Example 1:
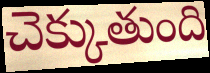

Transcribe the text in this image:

చెక్కుతుంది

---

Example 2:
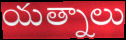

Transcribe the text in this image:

యత్నాలు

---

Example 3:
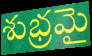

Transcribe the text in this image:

శుభ్రమై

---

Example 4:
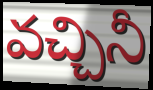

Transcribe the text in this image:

వచ్చినీ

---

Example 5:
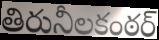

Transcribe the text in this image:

తిరునీలకంఠర్